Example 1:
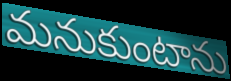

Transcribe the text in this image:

మనుకుంటాను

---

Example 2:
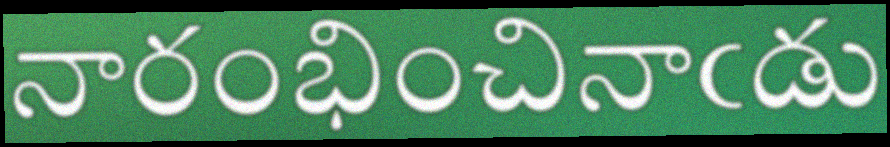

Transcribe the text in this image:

నారంభించినాఁడు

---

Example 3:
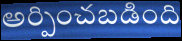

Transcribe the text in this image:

అర్పించబడింది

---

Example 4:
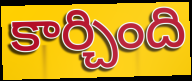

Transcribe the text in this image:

కార్చింది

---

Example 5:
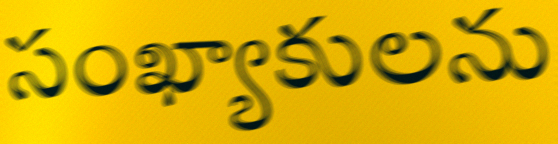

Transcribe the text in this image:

సంఖ్యాకులను